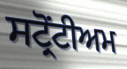
ਸਟ੍ਰੋਂਟੀਅਮ